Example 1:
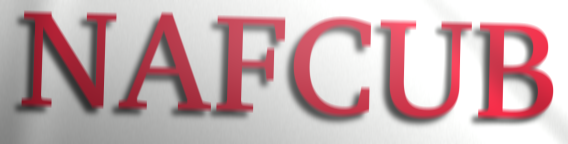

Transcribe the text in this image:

NAFCUB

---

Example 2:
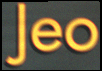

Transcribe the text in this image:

Jeo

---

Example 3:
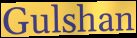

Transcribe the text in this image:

Gulshan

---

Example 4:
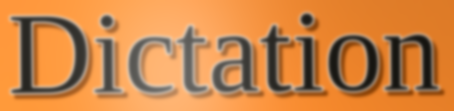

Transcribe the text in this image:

Dictation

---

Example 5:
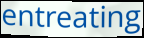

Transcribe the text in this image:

entreating